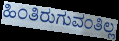
ಹಿಂತಿರುಗುವಂತಿಲ್ಲ